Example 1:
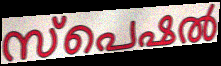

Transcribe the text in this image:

സ്പെഷൽ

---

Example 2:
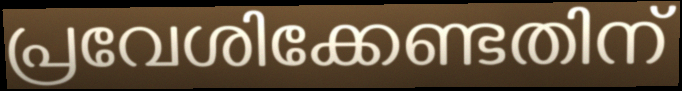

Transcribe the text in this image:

പ്രവേശിക്കേണ്ടതിന്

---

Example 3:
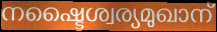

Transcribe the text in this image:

നഷ്ടൈശ്വര്യമുഖാന്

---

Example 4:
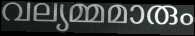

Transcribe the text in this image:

വല്യമ്മമാരും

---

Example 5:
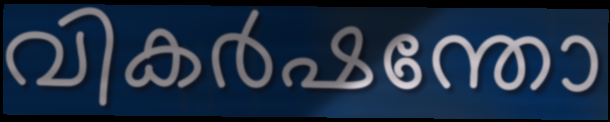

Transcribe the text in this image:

വികർഷന്തോ